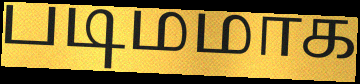
படிமமாக